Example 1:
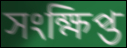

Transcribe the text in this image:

সংক্ষিপ্ত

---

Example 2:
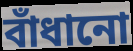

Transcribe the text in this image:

বাঁধানো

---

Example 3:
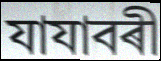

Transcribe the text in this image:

যাযাবৰী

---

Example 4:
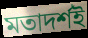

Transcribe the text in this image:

মতাদৰ্শই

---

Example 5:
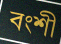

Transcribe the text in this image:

বংশী